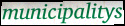
municipalitys